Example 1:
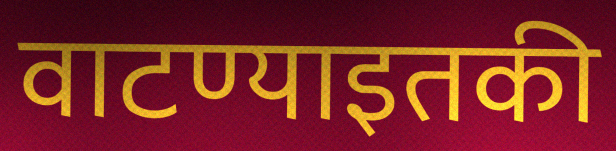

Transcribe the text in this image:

वाटण्याइतकी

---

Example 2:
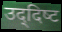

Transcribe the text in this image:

उद्‌दिष्‍ट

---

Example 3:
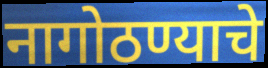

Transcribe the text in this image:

नागोठण्याचे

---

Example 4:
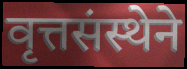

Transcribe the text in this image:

वृत्तसंस्थेने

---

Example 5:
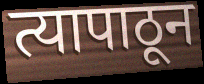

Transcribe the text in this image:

त्यापाठून